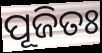
ପୂଜିତଃ